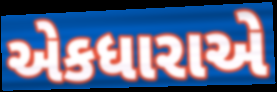
એકધારાએ